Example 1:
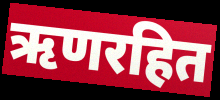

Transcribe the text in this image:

ऋणरहित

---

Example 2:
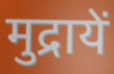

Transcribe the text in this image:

मुद्रायें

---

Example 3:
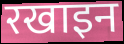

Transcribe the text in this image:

रखाइन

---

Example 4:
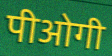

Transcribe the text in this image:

पीओगी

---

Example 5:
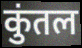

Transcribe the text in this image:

कुंतल